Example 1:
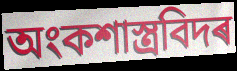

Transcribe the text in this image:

অংকশাস্ত্ৰবিদৰ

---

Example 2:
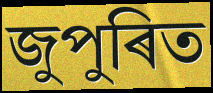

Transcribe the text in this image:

জুপুৰিত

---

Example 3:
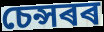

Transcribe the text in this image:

চেন্সৰৰ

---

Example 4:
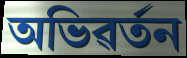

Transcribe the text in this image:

অভিৱৰ্তন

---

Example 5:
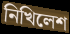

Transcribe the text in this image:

নিখিলেশ